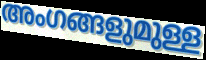
അംഗങ്ങളുമുള്ള